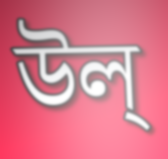
উল্